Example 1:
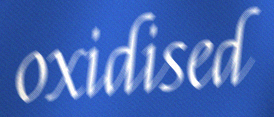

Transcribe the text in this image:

oxidised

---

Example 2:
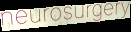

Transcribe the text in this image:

neurosurgery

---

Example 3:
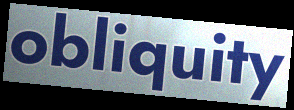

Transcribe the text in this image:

obliquity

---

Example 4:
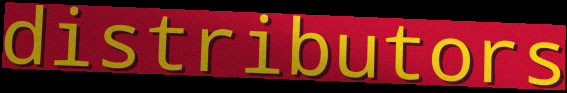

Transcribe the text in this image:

distributors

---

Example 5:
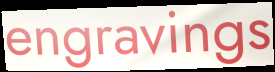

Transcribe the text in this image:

engravings